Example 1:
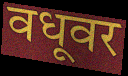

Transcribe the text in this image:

वधूवर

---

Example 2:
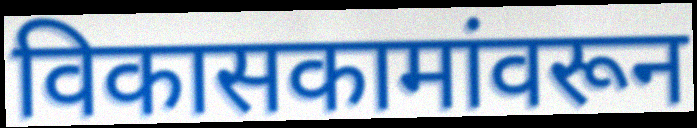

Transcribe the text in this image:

विकासकामांवरून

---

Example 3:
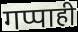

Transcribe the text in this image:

गप्पाही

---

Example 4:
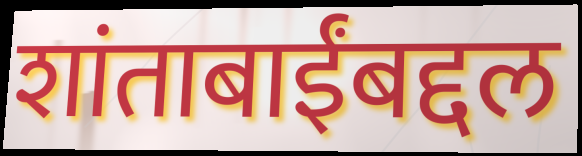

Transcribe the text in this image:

शांताबाईंबद्दल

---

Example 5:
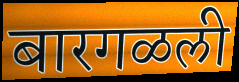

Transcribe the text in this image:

बारगळली